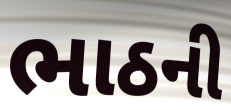
ભાઠની